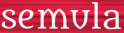
semula